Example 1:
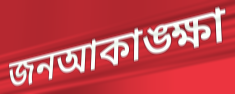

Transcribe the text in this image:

জনআকাঙ্ক্ষা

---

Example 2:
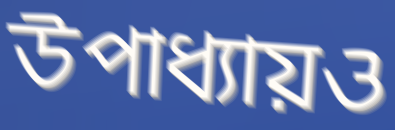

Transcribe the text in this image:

উপাধ্যায়ও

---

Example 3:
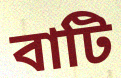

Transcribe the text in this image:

বাটি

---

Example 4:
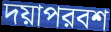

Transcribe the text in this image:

দয়াপরবশ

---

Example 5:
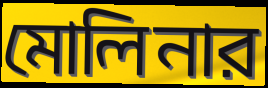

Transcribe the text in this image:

মোলিনার